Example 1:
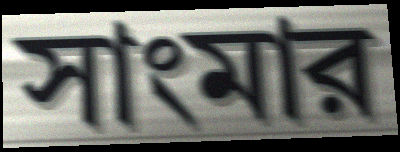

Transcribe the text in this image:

সাংমার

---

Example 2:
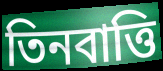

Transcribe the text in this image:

তিনবাত্তি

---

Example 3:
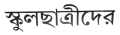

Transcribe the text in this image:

স্কুলছাত্রীদের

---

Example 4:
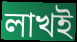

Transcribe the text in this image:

লাখই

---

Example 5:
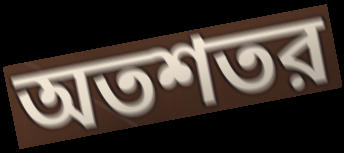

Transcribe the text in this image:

অতশতর